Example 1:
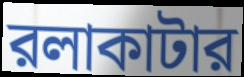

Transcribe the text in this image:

রলাকাটার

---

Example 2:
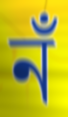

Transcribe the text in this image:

নঁ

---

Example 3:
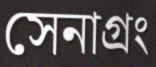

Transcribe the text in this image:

সেনাগ্রং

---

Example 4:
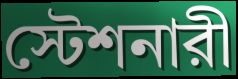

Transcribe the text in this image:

স্টেশনারী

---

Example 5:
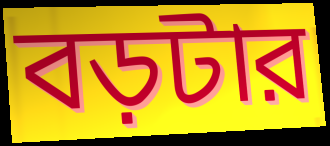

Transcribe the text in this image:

বড়টার